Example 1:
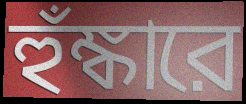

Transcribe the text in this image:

হুঁঙ্কারে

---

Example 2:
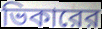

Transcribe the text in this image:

ভিকারের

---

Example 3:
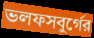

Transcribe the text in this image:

ভলফসবুর্গের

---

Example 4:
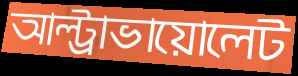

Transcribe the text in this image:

আল্ট্রাভায়োলেট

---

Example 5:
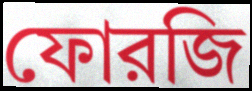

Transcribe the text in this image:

ফোরজি